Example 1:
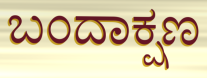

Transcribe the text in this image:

ಬಂದಾಕ್ಷಣ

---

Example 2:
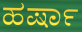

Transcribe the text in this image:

ಹರ್ಷಾ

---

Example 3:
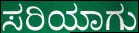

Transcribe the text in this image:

ಸರಿಯಾಗು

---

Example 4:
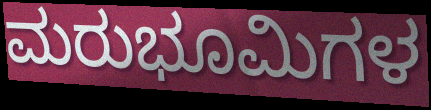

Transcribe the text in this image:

ಮರುಭೂಮಿಗಳ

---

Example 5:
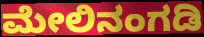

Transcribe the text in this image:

ಮೇಲಿನಂಗಡಿ